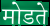
मोडते